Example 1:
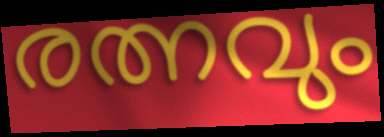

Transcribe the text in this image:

രത്നവും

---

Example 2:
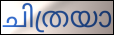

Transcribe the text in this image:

ചിത്രയാ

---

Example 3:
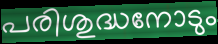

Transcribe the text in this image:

പരിശുദ്ധനോടും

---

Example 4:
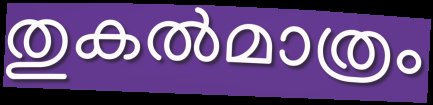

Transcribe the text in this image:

തുകൽമാത്രം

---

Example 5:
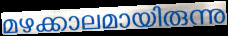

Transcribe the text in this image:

മഴക്കാലമായിരുന്നു